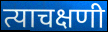
त्याचक्षणी